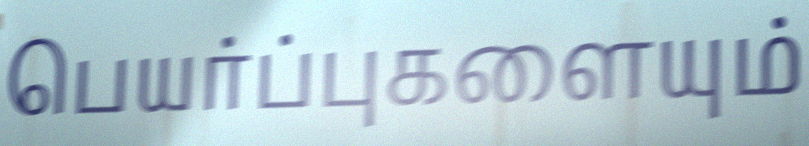
பெயர்ப்புகளையும்